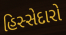
હિસ્સેદારો